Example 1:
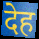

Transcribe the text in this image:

देह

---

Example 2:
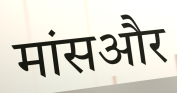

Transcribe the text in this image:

मांसऔर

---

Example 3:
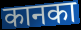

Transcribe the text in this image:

कानका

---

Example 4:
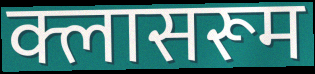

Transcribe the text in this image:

क्लासरूम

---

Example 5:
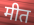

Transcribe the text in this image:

मीत